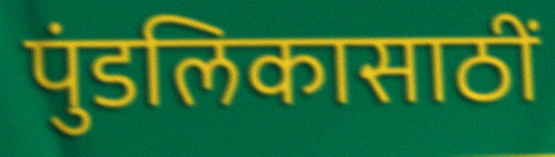
पुंडलिकासाठीं